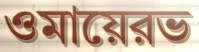
ওমায়েরভ